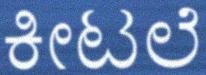
ಕೀಟಲೆ